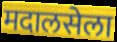
मदालसेला